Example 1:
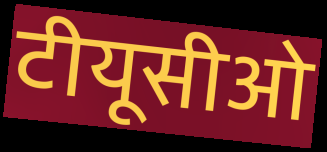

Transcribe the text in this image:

टीयूसीओ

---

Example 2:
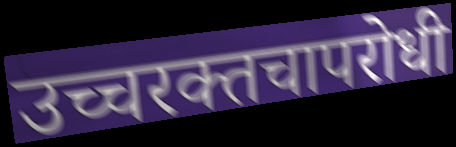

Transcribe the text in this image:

उच्चरक्तचापरोधी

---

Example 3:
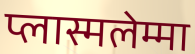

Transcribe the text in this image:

प्लास्मलेम्मा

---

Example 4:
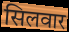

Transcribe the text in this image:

सिलवार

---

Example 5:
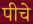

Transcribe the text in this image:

पीचे